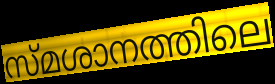
സ്മശാനത്തിലെ